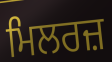
ਮਿਲਰਜ਼